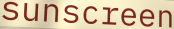
sunscreen